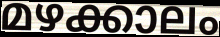
മഴക്കാലം